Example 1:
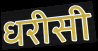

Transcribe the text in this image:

धरीसी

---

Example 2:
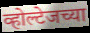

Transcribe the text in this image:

व्होल्टेजच्या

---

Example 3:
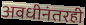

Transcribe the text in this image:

अवधीनंतरही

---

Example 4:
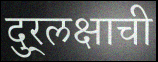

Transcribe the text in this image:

दुर्लक्षाची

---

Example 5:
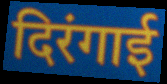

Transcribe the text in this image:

दिरंगाई